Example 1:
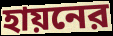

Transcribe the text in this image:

হায়নের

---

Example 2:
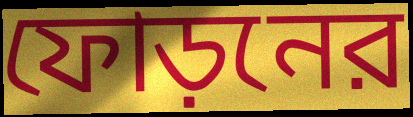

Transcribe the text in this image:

ফোড়নের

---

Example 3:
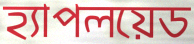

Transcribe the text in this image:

হ্যাপলয়েড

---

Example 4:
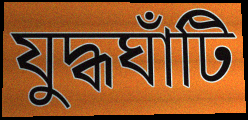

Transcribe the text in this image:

যুদ্ধঘাঁটি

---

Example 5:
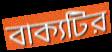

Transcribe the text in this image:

বাক্যটির